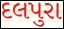
દલપુરા